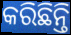
କରିଛିନ୍ତି